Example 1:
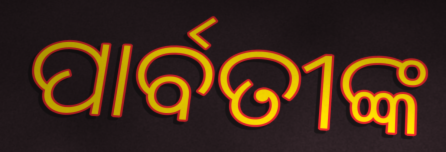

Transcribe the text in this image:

ପାର୍ବତୀଙ୍କ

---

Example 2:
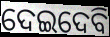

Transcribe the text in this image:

ଦେଇଦେବି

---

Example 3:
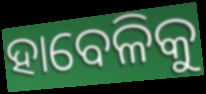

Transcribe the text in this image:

ହାବେଳିକୁ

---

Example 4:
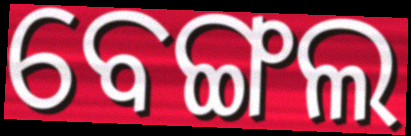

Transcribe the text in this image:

ବେଙ୍ଗଲ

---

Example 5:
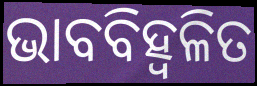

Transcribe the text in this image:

ଭାବବିହ୍ବଳିତ